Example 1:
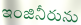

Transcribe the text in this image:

ఇంజినీరును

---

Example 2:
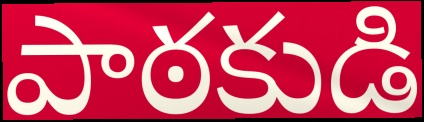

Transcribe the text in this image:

పాఠకుడి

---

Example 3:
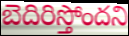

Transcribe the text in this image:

బెదిరిస్తోందని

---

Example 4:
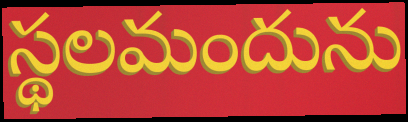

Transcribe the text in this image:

స్థలమందును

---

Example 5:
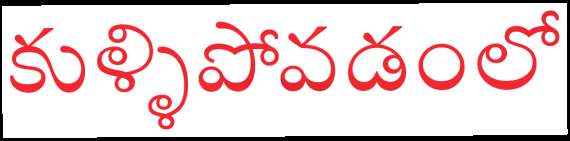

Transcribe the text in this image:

కుళ్ళిపోవడంలో